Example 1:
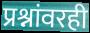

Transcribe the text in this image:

प्रश्नांवरही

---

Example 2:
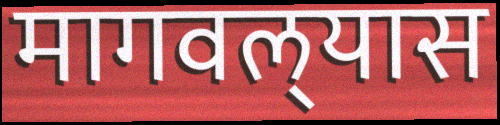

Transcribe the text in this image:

मागवल्यास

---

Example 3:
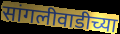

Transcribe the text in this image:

सांगलीवाडीच्या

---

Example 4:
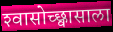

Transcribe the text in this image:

श्वासोच्छ्वासाला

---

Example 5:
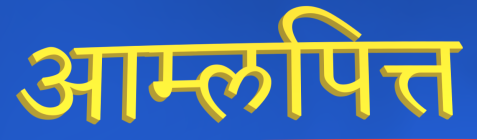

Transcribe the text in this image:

आम्लपित्त